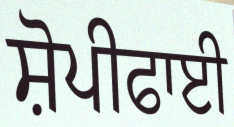
ਸ਼ੋਪੀਫਾਈ